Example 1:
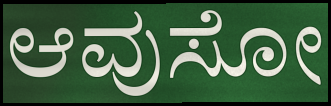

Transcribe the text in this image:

ಆವುಸೋ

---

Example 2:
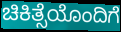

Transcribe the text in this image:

ಚಿಕಿತ್ಸೆಯೊಂದಿಗೆ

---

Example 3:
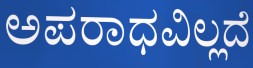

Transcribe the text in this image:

ಅಪರಾಧವಿಲ್ಲದೆ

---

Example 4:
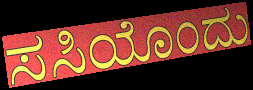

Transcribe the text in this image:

ಸಸಿಯೊಂದು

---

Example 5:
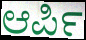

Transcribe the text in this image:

ಆರ್ಪಿ